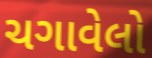
ચગાવેલો